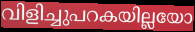
വിളിച്ചുപറകയില്ലയോ